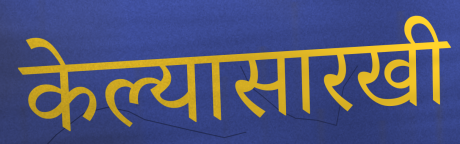
केल्यासारखी